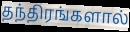
தந்திரங்களால்